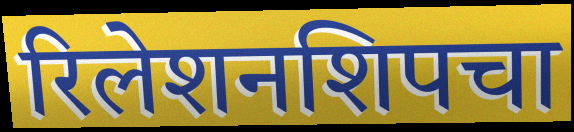
रिलेशनशिपचा